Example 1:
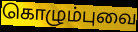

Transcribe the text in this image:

கொழும்புவை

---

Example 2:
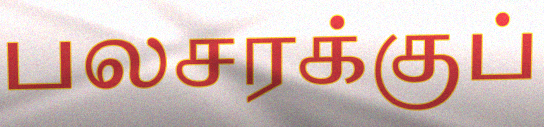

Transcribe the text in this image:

பலசரக்குப்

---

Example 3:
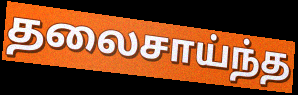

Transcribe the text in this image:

தலைசாய்ந்த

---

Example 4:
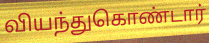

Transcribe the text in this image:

வியந்துகொண்டார்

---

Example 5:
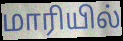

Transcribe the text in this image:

மாரியில்